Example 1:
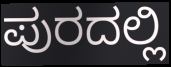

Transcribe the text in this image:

ಪುರದಲ್ಲಿ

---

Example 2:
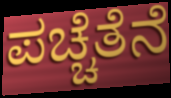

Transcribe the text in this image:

ಪಚ್ಚೆತೆನೆ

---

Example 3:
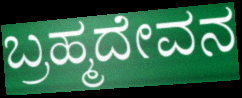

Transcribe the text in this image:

ಬ್ರಹ್ಮದೇವನ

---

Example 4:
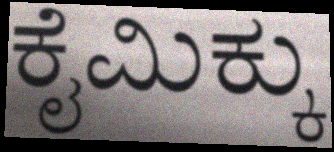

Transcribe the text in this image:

ಕೈಮಿಕ್ಕು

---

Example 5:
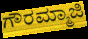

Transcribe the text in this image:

ಗೌರಮ್ಮಾಜಿ